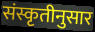
संस्कृतीनुसार